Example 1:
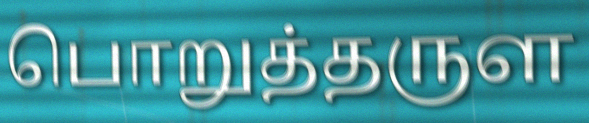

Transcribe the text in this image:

பொறுத்தருள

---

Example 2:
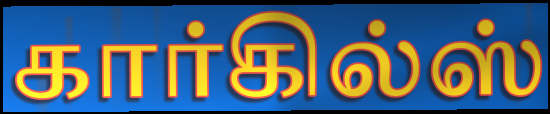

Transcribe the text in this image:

கார்கில்ஸ்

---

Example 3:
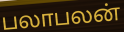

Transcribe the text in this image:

பலாபலன்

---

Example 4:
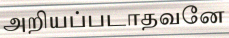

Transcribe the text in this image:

அறியப்படாதவனே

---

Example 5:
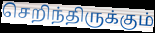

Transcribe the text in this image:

செறிந்திருக்கும்